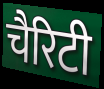
चैरिटी